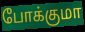
போக்குமா